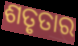
ଶତୃତାର